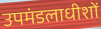
उपमंडलाधीशों